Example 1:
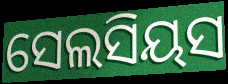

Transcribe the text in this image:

ସେଲସିୟସ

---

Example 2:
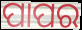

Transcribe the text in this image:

ପାପର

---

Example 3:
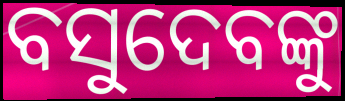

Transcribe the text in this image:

ବସୁଦେବଙ୍କୁ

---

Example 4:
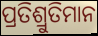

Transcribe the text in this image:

ପ୍ରତିଶ୍ରୁତିମାନ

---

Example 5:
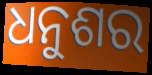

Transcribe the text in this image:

ଧନୁଶର